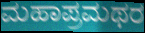
ಮಹಾಪ್ರಮಥರ